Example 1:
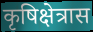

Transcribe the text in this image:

कृषिक्षेत्रास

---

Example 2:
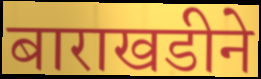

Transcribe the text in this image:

बाराखडीने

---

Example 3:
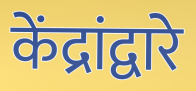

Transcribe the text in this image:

केंद्रांद्वारे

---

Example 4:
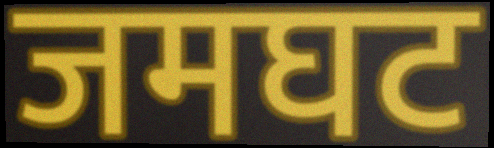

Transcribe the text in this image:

जमघट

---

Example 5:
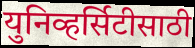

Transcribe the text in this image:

युनिव्हर्सिटीसाठी